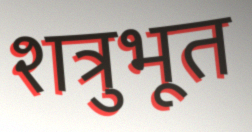
शत्रुभूत